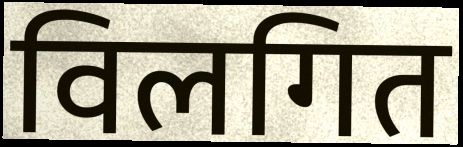
विलगित